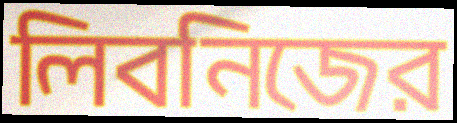
লিবনিজের